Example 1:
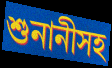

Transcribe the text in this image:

শুনানীসহ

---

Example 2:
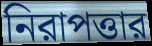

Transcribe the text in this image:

নিরাপত্তার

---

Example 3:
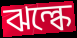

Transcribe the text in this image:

ঝল্কে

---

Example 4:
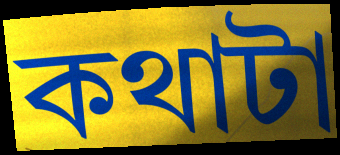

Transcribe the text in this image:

কথাটা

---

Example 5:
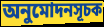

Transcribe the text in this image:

অনুমোদনসূচক